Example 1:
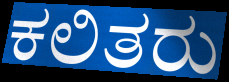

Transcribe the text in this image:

ಕಲಿತರು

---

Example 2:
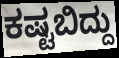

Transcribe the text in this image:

ಕಷ್ಟಬಿದ್ದು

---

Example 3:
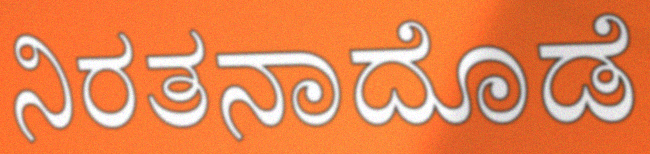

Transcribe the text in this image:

ನಿರತನಾದೊಡೆ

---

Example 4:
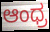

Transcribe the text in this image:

ಆಂಧ್ರ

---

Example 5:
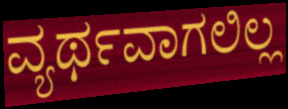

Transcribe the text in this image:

ವ್ಯರ್ಥವಾಗಲಿಲ್ಲ